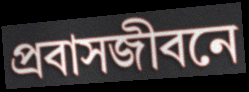
প্রবাসজীবনে